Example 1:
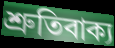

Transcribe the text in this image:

শ্রুতিবাক্য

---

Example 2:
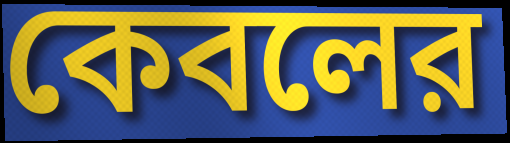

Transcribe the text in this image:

কেবলের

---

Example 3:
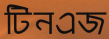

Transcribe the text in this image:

টিনএজ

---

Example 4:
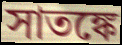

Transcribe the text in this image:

সাতঙ্কে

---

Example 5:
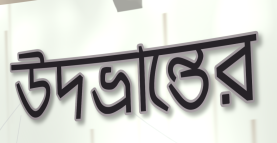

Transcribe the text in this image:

উদভ্রান্তের